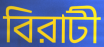
বিরাটী